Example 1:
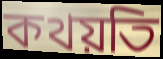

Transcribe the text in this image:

কথয়তি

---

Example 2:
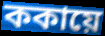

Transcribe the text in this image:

ককায়ে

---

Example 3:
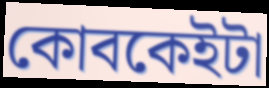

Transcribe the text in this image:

কোবকেইটা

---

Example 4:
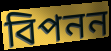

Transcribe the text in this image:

বিপনন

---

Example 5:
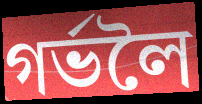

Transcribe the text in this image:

গৰ্ভলৈ